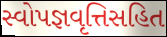
સ્વોપજ્ઞવૃત્તિસહિત